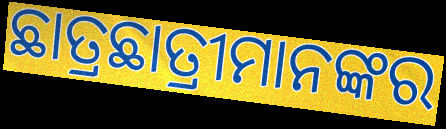
ଛାତ୍ରଛାତ୍ରୀମାନଙ୍କର